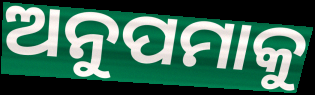
ଅନୁପମାକୁ